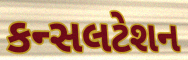
કન્સલટેશન